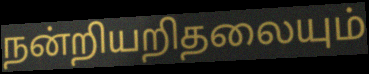
நன்றியறிதலையும்